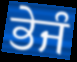
ਭੇਜੰ